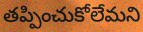
తప్పించుకోలేమని